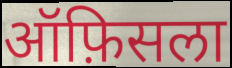
ऑफ़िसला